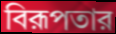
বিরূপতার